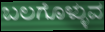
ಬಲಗೊಳ್ಳುವ